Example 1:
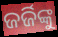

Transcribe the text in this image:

ଜର୍ଜିଙ୍କୁ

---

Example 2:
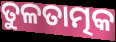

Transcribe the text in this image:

ତୁଳତାତ୍ମକ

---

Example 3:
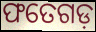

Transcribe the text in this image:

ଫତେଗଡ଼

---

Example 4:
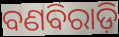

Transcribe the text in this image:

ବଣବିରାଡ଼ି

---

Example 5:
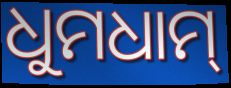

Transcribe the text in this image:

ଧୁମଧାମ୍